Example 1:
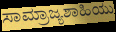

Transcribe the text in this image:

ಸಾಮ್ರಾಜ್ಯಶಾಹಿಯು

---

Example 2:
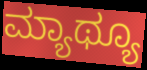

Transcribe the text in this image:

ಮ್ಯಾಥ್ಯೂ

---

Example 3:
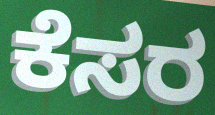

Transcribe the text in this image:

ಕೆಸರ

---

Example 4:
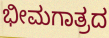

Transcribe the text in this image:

ಭೀಮಗಾತ್ರದ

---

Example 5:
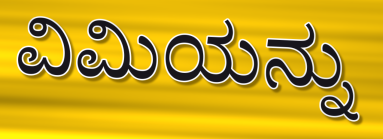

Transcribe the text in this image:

ವಿಮಿಯನ್ನು